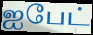
ஐபேட்